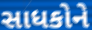
સાધકોને